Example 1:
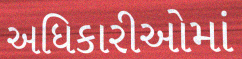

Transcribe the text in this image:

અધિકારીઓમાં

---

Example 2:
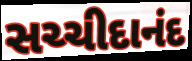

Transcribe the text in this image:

સચ્ચીદાનંદ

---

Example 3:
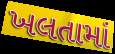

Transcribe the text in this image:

ખલતામાં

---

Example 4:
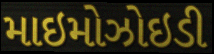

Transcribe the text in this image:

માઇમોઝોઇડી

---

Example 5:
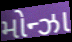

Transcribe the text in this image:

મોન્ઝા